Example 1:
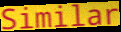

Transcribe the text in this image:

Similar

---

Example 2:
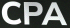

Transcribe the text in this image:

CPA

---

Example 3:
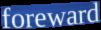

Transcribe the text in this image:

foreward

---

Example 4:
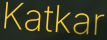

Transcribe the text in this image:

Katkar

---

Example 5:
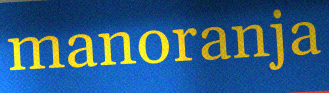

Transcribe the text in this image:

manoranja